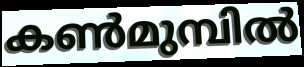
കൺമുമ്പിൽ